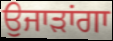
ਉਜਾੜਾਂਗਾ